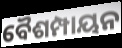
ବୈଶମ୍ପାୟନ